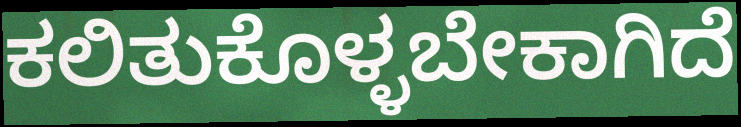
ಕಲಿತುಕೊಳ್ಳಬೇಕಾಗಿದೆ